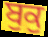
ਬੁਕੁ